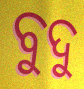
ବୁଦୁ